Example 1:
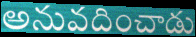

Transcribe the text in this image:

అనువదించాడు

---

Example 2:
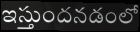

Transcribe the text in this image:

ఇస్తుందనడంలో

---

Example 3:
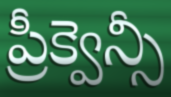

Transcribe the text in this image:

ప్రీక్వెన్సీ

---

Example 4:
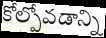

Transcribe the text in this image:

కోల్పోవడాన్ని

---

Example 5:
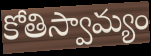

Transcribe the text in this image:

కోతిస్వామ్యం